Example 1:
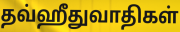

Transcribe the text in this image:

தவ்ஹீதுவாதிகள்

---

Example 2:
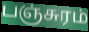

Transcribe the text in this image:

பஞ்சுரம்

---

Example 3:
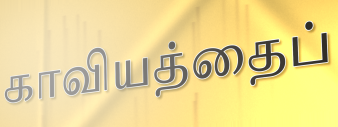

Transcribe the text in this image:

காவியத்தைப்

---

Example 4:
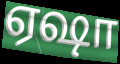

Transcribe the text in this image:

ஏஷா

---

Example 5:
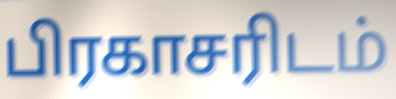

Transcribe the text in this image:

பிரகாசரிடம்